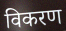
विकरण